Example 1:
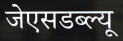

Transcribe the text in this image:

जेएसडब्ल्यू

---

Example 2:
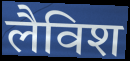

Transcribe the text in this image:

लैविश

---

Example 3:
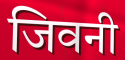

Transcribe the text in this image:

जिवनी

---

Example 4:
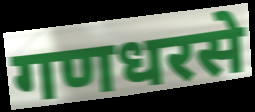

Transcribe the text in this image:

गणधरसे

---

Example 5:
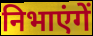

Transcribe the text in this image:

निभाएंगें